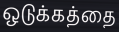
ஒடுக்கத்தை